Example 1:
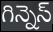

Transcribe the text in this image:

గిన్నెస్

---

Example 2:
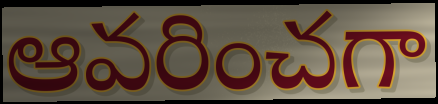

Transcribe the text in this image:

ఆవరించగా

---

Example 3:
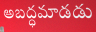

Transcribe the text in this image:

అబద్ధమాడడు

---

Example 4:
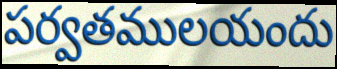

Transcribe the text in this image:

పర్వతములయందు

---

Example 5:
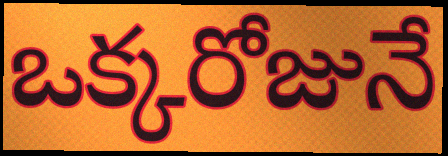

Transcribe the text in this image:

ఒక్కరోజునే